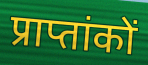
प्राप्तांकों